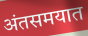
अंतसमयात